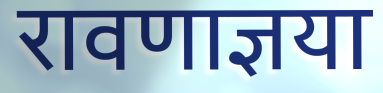
रावणाज्ञया